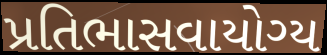
પ્રતિભાસવાયોગ્ય